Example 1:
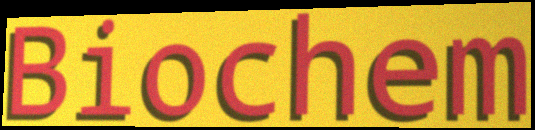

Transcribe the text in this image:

Biochem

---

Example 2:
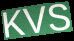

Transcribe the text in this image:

KVS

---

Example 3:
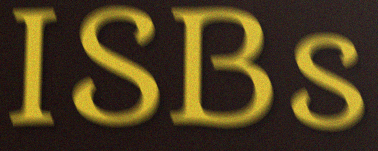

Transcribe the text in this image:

ISBs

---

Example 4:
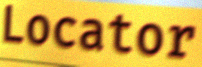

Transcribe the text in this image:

Locator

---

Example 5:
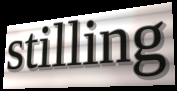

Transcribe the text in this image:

stilling